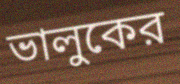
ভালুকের